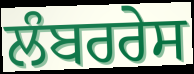
ਲੰਬਰਰੇਸ